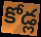
కోడ్ల